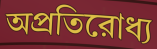
অপ্রতিরোধ্য